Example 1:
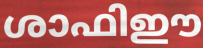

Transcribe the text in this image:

ശാഫിഈ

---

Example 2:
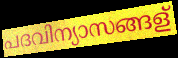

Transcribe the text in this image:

പദവിന്യാസങ്ങള്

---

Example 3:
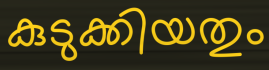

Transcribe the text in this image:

കുടുക്കിയതും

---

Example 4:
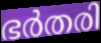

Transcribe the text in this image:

ഭർതരി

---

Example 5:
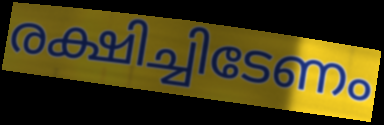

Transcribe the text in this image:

രക്ഷിച്ചിടേണം